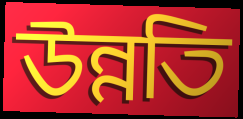
উন্নতি